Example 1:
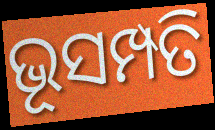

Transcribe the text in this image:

ଭୂସମ୍ପତି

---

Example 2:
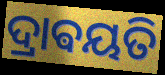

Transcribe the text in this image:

ଦ୍ରାଵୟତି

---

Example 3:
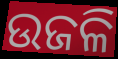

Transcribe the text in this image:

ଉଜଳି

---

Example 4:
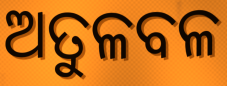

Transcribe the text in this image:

ଅତୁଳବଳ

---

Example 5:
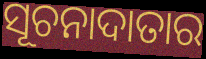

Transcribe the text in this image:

ସୂଚନାଦାତାର